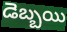
డెబ్బయి